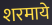
शरमाये